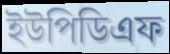
ইউপিডিএফ